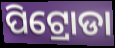
ପିଟ୍ରୋଡା